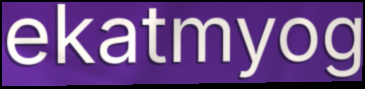
ekatmyog